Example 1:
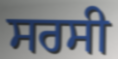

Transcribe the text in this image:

ਸਰਸੀ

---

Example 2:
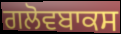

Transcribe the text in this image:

ਗਲੋਵਬਾਕਸ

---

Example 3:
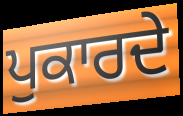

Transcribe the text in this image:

ਪੁਕਾਰਦੇ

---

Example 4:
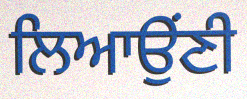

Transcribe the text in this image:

ਲਿਆਉਂਣੀ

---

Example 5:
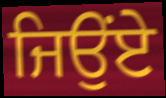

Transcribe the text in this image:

ਜਿਉਂਏ